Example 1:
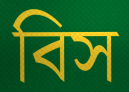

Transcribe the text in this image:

বিস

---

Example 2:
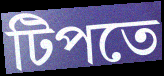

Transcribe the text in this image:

টিপতে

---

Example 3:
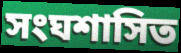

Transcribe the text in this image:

সংঘশাসিত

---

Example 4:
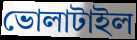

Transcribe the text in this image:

ভোলাটাইল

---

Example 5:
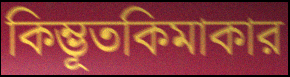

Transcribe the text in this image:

কিম্ভূতকিমাকার